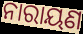
ନାରାୟଣ